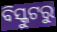
ବିସ୍କୁଟରୁ